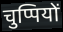
चुप्पियों